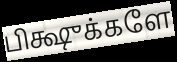
பிக்ஷுக்களே